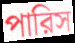
পারিস